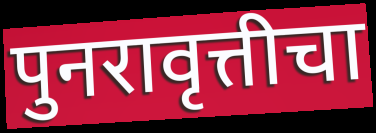
पुनरावृत्तीचा